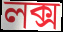
লক্স